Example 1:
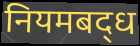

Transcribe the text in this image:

नियमबद्ध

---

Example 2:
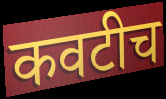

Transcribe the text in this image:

कवटीच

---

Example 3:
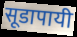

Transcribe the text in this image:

सूडापायी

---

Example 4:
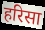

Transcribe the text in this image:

हरिसा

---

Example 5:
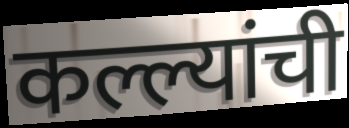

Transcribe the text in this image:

कल्ल्यांची